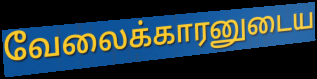
வேலைக்காரனுடைய